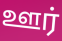
ஊர்